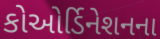
કોઓર્ડિનેશનના